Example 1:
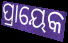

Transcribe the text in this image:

ପ୍ରାୟେକ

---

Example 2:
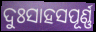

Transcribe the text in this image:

ଦୁଃସାହସପୂର୍ଣ୍ଣ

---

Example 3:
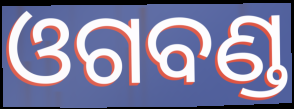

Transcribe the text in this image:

ଓଗବଣ୍ଡ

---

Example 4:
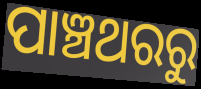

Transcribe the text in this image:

ପାଞ୍ଚଥରରୁ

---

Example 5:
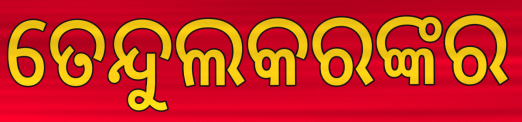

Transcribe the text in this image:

ତେନ୍ଦୁଲକରଙ୍କର